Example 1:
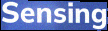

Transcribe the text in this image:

Sensing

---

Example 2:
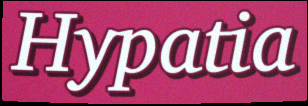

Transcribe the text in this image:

Hypatia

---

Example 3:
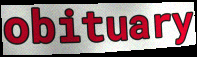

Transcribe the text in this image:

obituary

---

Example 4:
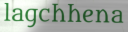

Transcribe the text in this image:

lagchhena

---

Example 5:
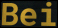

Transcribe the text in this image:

Bei